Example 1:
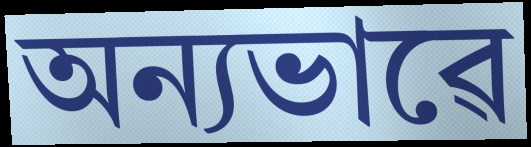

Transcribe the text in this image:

অন্যভাৱে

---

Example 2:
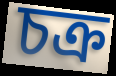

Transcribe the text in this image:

চক্ৰ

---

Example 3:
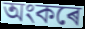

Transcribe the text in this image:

অংকৰে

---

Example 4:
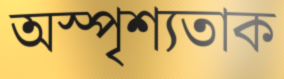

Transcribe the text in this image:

অস্পৃশ্যতাক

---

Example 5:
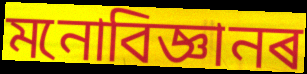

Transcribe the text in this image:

মনোবিজ্ঞানৰ